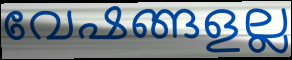
വേഷങ്ങളല്ല